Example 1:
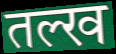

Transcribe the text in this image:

तल्‍ख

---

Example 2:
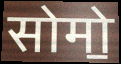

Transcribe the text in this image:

सोमो॒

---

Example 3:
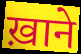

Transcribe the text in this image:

ख़ाने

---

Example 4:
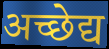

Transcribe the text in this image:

अच्छेद्य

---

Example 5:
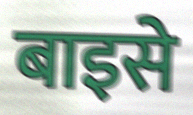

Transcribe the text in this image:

बाइसे